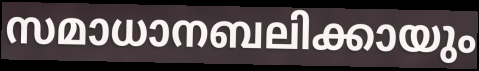
സമാധാനബലിക്കായും